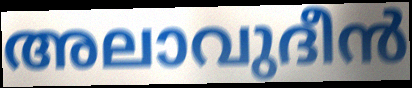
അലാവുദീൻ